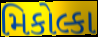
મિકોલ્કા